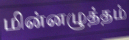
மின்னழுத்தம்